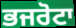
ਭਜਰੋਟਾ